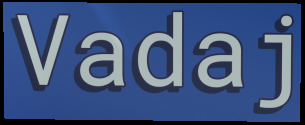
Vadaj